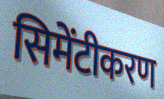
सिमेंटीकरण